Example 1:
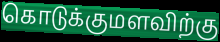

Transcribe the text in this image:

கொடுக்குமளவிற்கு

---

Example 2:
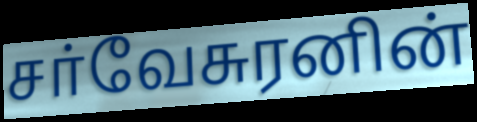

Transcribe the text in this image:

சர்வேசுரனின்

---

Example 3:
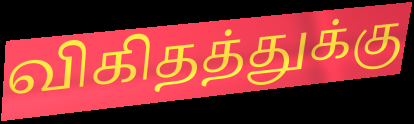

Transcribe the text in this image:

விகிதத்துக்கு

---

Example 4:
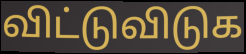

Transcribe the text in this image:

விட்டுவிடுக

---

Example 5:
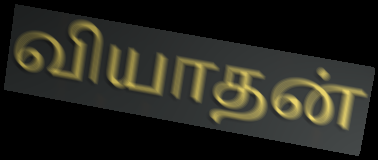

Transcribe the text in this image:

வியாதன்